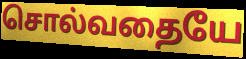
சொல்வதையே